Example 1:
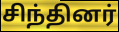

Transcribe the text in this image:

சிந்தினர்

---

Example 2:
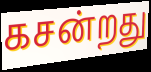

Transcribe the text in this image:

கசன்றது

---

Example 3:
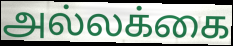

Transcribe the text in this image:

அல்லக்கை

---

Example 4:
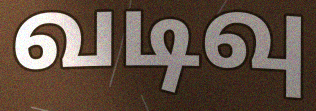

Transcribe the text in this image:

வடிவு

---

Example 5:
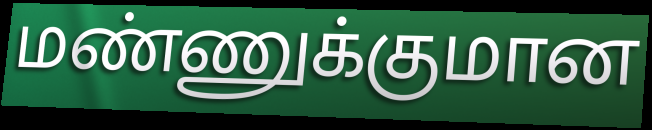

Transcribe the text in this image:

மண்ணுக்குமான